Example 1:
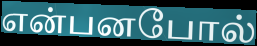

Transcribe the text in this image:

என்பனபோல்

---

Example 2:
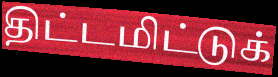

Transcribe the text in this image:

திட்டமிட்டுக்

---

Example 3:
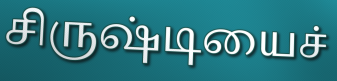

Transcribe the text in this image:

சிருஷ்டியைச்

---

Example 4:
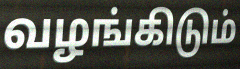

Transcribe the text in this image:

வழங்கிடும்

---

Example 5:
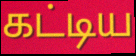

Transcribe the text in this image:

கட்டிய